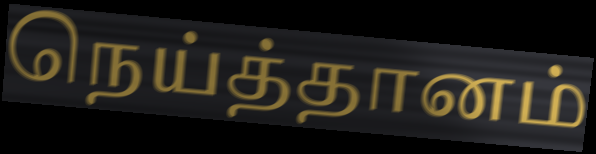
நெய்த்தானம்